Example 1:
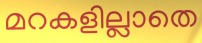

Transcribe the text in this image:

മറകളില്ലാതെ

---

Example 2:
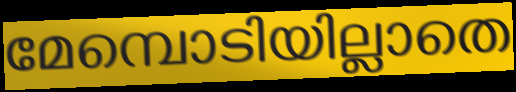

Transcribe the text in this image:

മേമ്പൊടിയില്ലാതെ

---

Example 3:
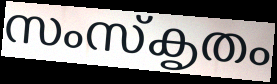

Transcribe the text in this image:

സംസ്‌കൃതം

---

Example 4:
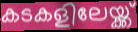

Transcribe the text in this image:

കടകളിലേയ്ക്ക്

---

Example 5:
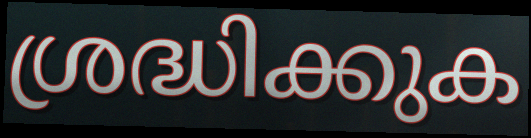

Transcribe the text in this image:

ശ്രദ്ധിക്കുക